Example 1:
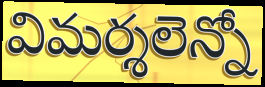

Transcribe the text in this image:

విమర్శలెన్నో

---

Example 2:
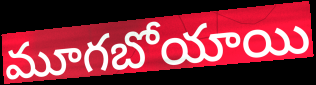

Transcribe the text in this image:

మూగబోయాయి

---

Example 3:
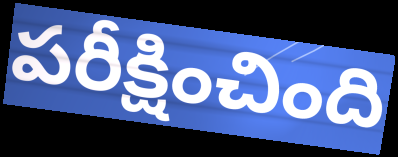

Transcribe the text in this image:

పరీక్షించింది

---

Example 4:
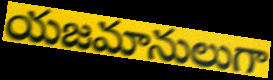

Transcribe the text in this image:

యజమానులుగా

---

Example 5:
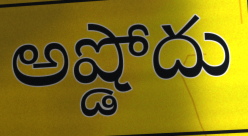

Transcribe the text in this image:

అష్డోదు